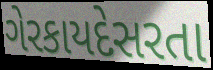
ગેરકાયદેસરતા